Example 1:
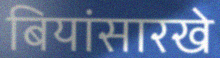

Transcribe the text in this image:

बियांसारखे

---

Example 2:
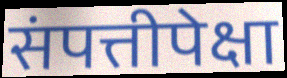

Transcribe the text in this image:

संपत्तीपेक्षा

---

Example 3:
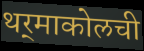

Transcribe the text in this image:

थर्माकोलची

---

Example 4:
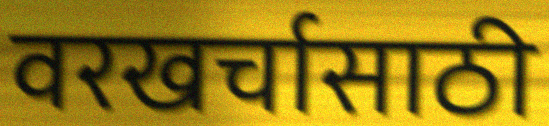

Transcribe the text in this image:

वरखर्चासाठी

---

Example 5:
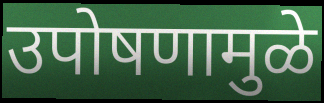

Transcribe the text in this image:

उपोषणामुळे